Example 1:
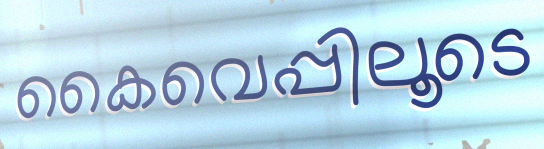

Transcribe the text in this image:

കൈവെപ്പിലൂടെ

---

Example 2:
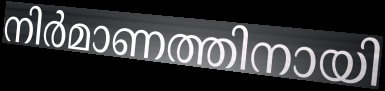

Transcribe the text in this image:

നിർമാണത്തിനായി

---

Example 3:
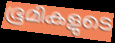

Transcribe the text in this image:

ഭൂമികളുടെ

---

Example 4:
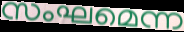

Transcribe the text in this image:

സംഘമെന്ന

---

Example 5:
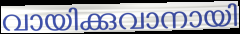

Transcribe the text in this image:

വായിക്കുവാനായി